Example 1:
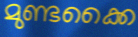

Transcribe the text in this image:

മുണ്ടക്കൈ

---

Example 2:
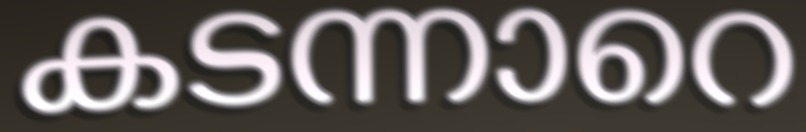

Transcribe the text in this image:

കടന്നാറെ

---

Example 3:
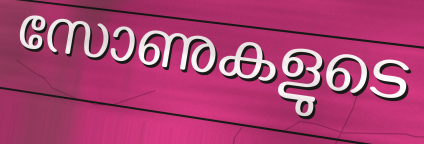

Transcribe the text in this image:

സോണുകളുടെ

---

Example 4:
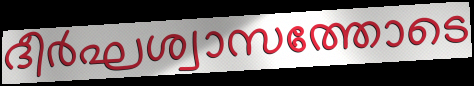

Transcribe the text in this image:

ദീർഘശ്വാസത്തോടെ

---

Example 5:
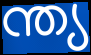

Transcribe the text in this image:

ന്ത്യ